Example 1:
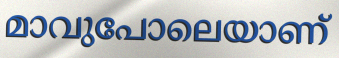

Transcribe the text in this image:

മാവുപോലെയാണ്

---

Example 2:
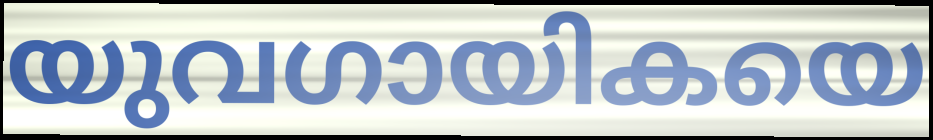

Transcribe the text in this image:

യുവഗായികയെ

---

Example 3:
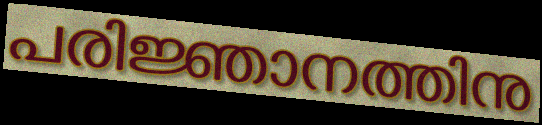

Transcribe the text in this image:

പരിജ്ഞാനത്തിനു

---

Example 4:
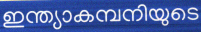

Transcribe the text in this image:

ഇന്ത്യാകമ്പനിയുടെ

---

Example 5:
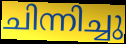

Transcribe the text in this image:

ചിന്നിച്ചു